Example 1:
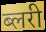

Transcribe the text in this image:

ब्लरी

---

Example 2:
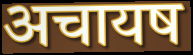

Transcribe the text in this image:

अचायष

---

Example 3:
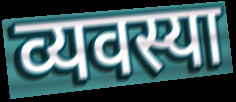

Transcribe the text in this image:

व्यवस्या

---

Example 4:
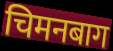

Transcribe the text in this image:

चिमनबाग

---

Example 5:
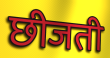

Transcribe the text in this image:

छीजती